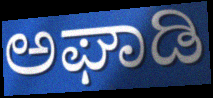
ಅಘಾಡಿ